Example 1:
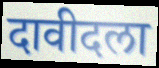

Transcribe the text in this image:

दावीदला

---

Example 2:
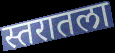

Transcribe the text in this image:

स्तरातला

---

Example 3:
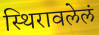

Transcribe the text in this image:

स्थिरावलेलं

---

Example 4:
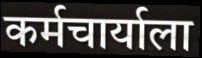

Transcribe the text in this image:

कर्मचार्याला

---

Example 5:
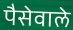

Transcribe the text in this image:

पैसेवाले